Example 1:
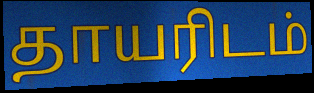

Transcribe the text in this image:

தாயரிடம்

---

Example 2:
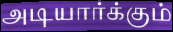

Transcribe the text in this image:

அடியார்க்கும்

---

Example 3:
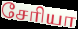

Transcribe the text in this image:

சேரியா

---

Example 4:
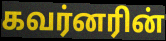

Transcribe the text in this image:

கவர்னரின்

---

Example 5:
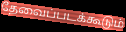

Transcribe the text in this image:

தேவைப்படக்கூடும்